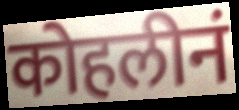
कोहलीनं